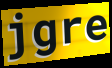
jgre